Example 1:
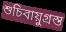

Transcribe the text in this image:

শুচিবায়ুগ্ৰস্ত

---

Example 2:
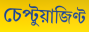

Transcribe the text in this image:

চেপ্টুয়াজিণ্ট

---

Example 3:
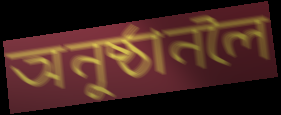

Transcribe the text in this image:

অনুষ্ঠানলৈ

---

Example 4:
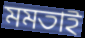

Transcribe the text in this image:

মমতাই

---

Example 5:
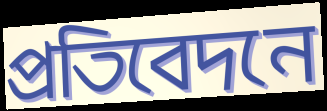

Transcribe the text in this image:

প্ৰতিবেদনে